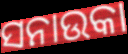
ସନାଉକା